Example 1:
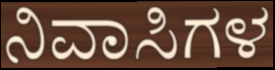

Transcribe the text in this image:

ನಿವಾಸಿಗಳ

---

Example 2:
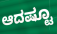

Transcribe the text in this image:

ಆದಷ್ಟೂ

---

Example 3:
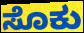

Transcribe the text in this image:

ಸೊಕು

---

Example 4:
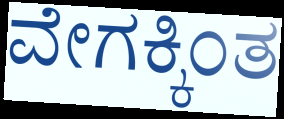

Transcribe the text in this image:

ವೇಗಕ್ಕಿಂತ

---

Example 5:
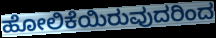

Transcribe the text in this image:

ಹೋಲಿಕೆಯಿರುವುದರಿಂದ